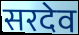
सरदेव